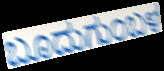
ಬೂದುಗುಂಬಳ